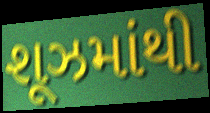
શૂઝમાંથી